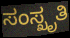
ಸಂಸ್ಖೃತಿ